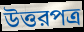
উত্তরপত্র